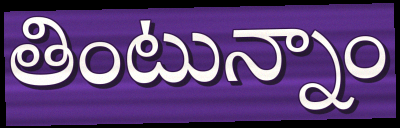
తింటున్నాం